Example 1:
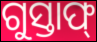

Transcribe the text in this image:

ଗୁସ୍ତାଫ୍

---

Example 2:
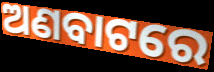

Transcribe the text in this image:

ଅଣବାଟରେ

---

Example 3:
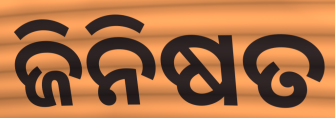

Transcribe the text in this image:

ଜିନିଷତ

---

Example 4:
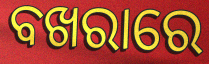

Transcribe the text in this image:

ବଖରାରେ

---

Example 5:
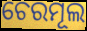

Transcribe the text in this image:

ଚେରମୂଲ